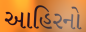
આહિરનો